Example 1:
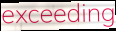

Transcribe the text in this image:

exceeding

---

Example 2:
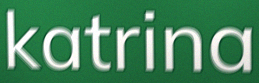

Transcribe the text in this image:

katrina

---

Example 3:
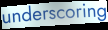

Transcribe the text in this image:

underscoring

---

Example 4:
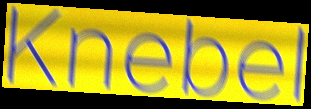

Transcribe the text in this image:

Knebel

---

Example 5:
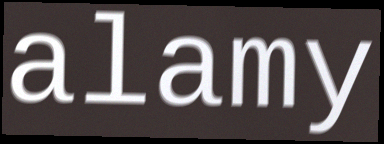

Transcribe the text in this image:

alamy